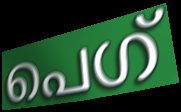
പെഗ്